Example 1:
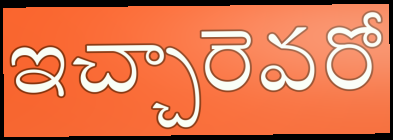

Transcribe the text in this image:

ఇచ్చారెవరో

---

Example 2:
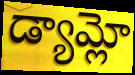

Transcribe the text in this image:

డ్యామ్లో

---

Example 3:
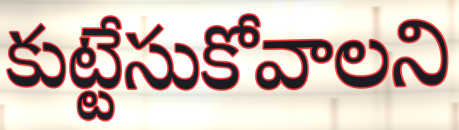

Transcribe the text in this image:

కుట్టేసుకోవాలని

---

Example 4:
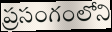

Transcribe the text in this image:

ప్రసంగంలోని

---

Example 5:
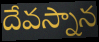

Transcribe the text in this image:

దేవస్నాన